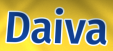
Daiva